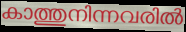
കാത്തുനിന്നവരിൽ